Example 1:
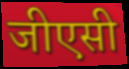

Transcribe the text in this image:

जीएसी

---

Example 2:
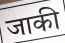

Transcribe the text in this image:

जाकी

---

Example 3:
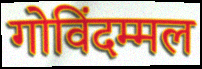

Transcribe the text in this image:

गोविंदम्मल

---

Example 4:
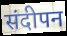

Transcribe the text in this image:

संदीपन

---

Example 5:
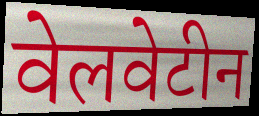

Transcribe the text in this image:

वेलवेटीन